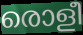
രൊളീ